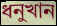
ধনুখান